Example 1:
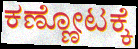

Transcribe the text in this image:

ಕಣ್ಣೋಟಕ್ಕೆ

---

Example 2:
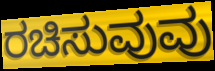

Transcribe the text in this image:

ರಚಿಸುವುವು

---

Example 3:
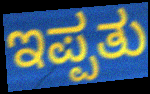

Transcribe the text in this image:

ಇಪ್ಪತು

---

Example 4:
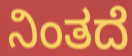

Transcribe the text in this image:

ನಿಂತದೆ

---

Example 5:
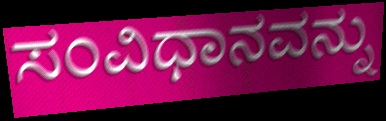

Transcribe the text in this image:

ಸಂವಿಧಾನವನ್ನು